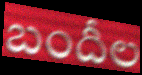
బందీల